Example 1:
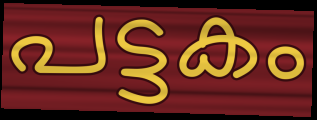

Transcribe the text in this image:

പട്ടകം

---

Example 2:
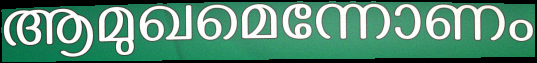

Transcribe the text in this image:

ആമുഖമെന്നോണം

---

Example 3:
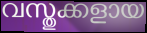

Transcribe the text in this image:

വസ്തുക്കളായ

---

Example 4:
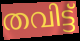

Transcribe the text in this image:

തവിട്ട്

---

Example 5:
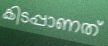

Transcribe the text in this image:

കിടപ്പാണത്